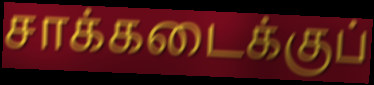
சாக்கடைக்குப்